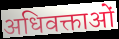
अधिवक्ताओं